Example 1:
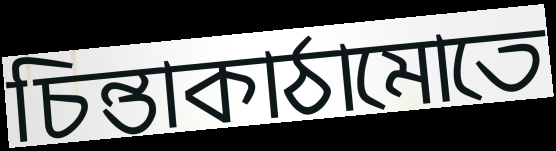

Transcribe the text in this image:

চিন্তাকাঠামোতে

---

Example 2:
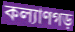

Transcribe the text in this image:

কল্যাণগড়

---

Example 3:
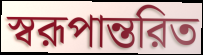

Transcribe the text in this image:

স্বরূপান্তরিত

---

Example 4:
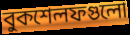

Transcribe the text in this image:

বুকশেলফগুলো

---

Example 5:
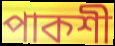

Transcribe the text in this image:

পাকশী